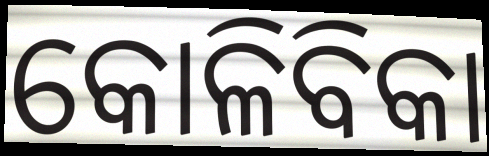
କୋଳିବିକା